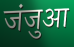
जंजुआ